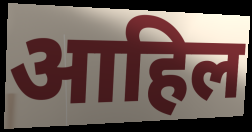
आहिल